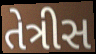
તેત્રીસ